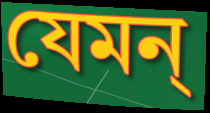
যেমন্